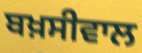
ਬਖ਼ਸੀਵਾਲ